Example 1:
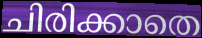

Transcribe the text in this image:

ചിരിക്കാതെ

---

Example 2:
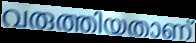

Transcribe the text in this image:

വരുത്തിയതാണ്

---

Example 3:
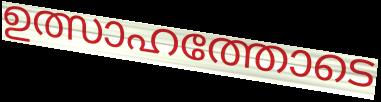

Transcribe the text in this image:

ഉത്സാഹത്തോടെ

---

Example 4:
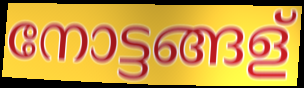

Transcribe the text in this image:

നോട്ടങ്ങള്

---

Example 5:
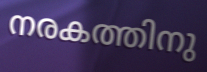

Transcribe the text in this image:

നരകത്തിനു